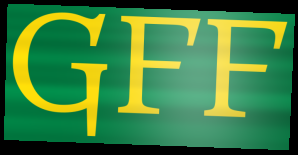
GFF